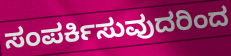
ಸಂಪರ್ಕಿಸುವುದರಿಂದ